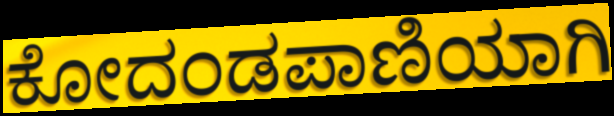
ಕೋದಂಡಪಾಣಿಯಾಗಿ